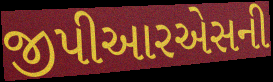
જીપીઆરએસની